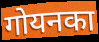
गोयनका